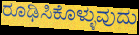
ರೂಢಿಸಿಕೊಳ್ಳುವುದು